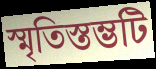
স্মৃতিস্তম্ভটি